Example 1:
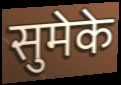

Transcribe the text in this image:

सुमेके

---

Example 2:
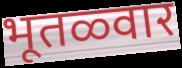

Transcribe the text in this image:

भूतळ्वार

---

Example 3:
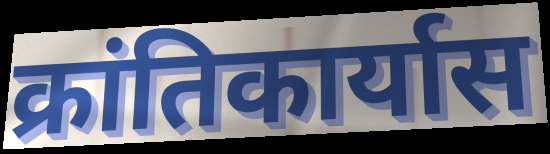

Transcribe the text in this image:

क्रांतिकार्यास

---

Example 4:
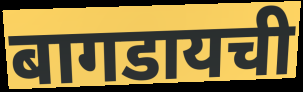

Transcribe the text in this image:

बागडायची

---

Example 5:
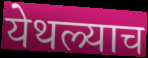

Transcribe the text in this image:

येथल्याच